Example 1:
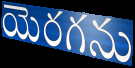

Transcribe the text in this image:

యెరగను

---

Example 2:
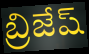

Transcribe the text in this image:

బ్రిజేష్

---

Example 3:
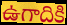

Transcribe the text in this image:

ఉగాదికి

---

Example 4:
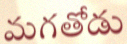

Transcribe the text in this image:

మగతోడు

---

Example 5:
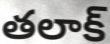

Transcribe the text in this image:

తలాక్